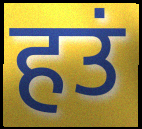
हउं